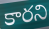
కారని